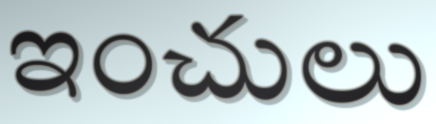
ఇంచులు